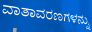
ವಾತಾವರಣಗಳನ್ನು